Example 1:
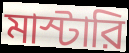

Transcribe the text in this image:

মাস্টারি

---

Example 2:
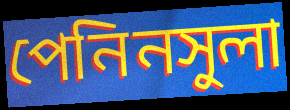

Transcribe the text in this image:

পেনিনসুলা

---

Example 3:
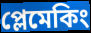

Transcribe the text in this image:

প্লেমেকিং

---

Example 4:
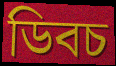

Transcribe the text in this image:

ডিবচ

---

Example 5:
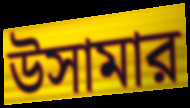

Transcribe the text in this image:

উসামার